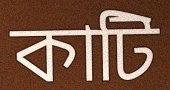
কাটি